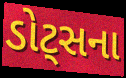
ડોટ્સના